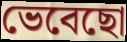
ভেবেছো